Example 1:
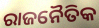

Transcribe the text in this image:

ରାଜନୈତିକ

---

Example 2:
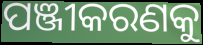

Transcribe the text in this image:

ପଞ୍ଜୀକରଣକୁ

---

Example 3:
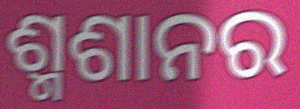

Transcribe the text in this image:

ଶ୍ମଶାନର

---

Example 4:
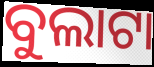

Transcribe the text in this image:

ବୁଲାଟା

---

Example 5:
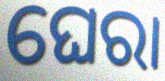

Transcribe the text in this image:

ଘେରା